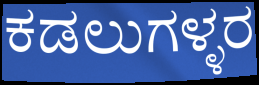
ಕಡಲುಗಳ್ಳರ